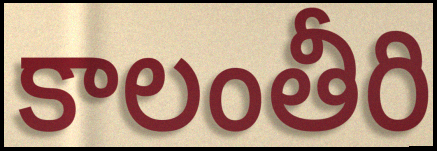
కాలంతీరి